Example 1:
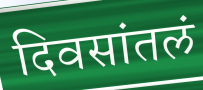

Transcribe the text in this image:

दिवसांतलं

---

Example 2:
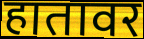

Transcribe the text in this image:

हातावर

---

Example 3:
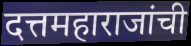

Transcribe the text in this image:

दत्तमहाराजांची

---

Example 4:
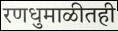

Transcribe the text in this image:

रणधुमाळीतही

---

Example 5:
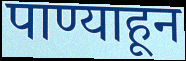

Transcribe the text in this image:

पाण्याहून